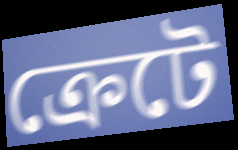
ক্রেটে